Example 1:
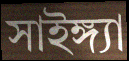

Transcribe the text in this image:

সাইঙ্গ্যা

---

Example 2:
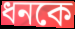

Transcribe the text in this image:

ধনকে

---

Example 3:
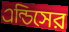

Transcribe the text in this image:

এন্ডিসের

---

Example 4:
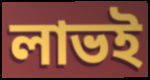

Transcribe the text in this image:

লাভই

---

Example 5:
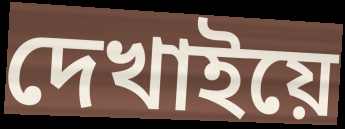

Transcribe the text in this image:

দেখাইয়ে